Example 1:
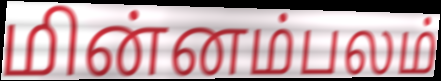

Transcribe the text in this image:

மின்னம்பலம்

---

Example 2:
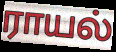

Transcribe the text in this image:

ராயல்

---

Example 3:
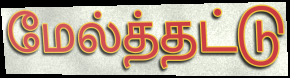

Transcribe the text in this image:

மேல்த்தட்டு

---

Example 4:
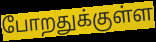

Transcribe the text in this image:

போறதுக்குள்ள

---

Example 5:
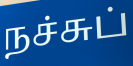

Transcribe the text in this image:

நச்சுப்